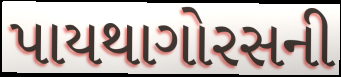
પાયથાગોરસની